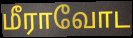
மீராவோட